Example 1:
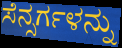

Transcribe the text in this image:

ಸೆನ್ಸರ್ಗಳನ್ನು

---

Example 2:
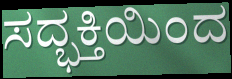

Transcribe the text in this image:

ಸದ್ಭಕ್ತಿಯಿಂದ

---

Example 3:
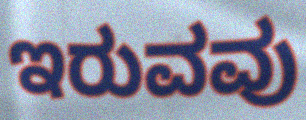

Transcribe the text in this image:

ಇರುವವು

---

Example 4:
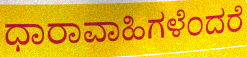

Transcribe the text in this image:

ಧಾರಾವಾಹಿಗಳೆಂದರೆ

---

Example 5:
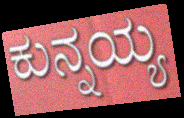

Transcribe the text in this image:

ಕುನ್ನಯ್ಯ